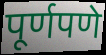
पूर्णपणे